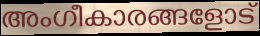
അംഗീകാരങ്ങളോട്